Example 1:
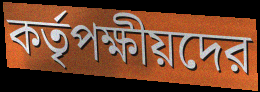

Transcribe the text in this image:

কর্তৃপক্ষীয়দের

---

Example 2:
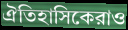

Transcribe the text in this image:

ঐতিহাসিকেরাও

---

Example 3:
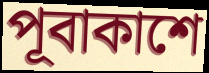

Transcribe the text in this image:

পূবাকাশে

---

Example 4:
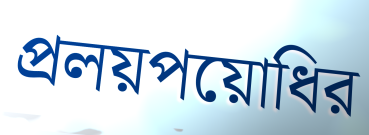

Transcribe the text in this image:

প্রলয়পয়োধির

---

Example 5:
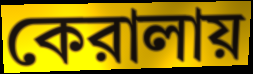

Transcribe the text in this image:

কেরালায়